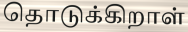
தொடுக்கிறாள்